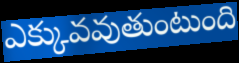
ఎక్కువవుతుంటుంది